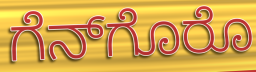
ಗೆನ್‌ಗೊರೊ